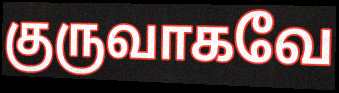
குருவாகவே